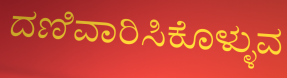
ದಣಿವಾರಿಸಿಕೊಳ್ಳುವ